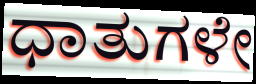
ಧಾತುಗಳೇ